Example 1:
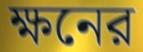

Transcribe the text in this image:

ক্ষনের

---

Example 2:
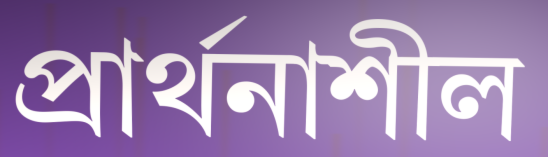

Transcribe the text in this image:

প্রার্থনাশীল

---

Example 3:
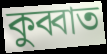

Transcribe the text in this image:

কুব্বাত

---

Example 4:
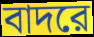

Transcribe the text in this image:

বাদরে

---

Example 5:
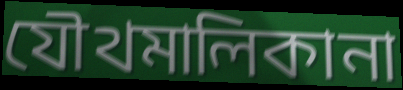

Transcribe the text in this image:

যৌথমালিকানা